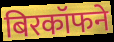
बिरकॉफने